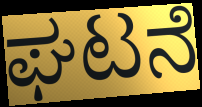
ಘಟನೆ